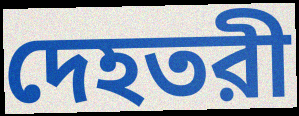
দেহতরী